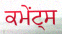
ਕਮੇਂਟ੍ਸ